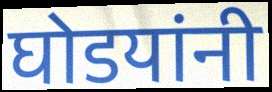
घोडयांनी